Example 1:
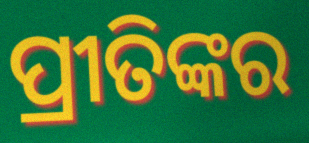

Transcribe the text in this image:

ପ୍ରୀତିଙ୍କର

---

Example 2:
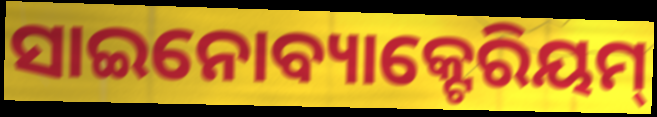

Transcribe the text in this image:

ସାଇନୋବ୍ୟାକ୍ଟେରିୟମ୍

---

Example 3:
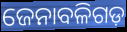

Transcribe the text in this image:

ଜେନାବଳିଗଡ଼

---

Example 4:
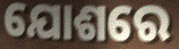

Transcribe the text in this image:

ଯୋଶରେ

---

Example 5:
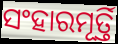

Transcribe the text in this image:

ସଂହାରମୂର୍ତ୍ତି